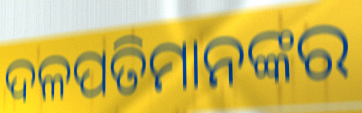
ଦଳପତିମାନଙ୍କର